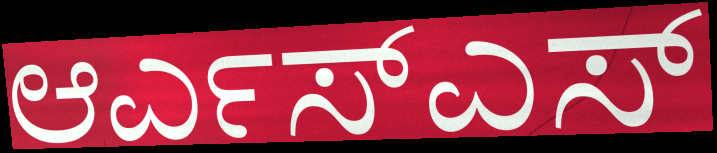
ಆರ್ಎಸ್ಎಸ್